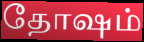
தோஷம்